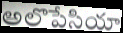
అలొపేసియా